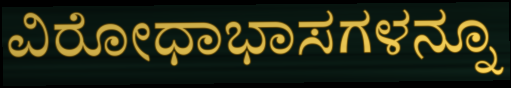
ವಿರೋಧಾಭಾಸಗಳನ್ನೂ